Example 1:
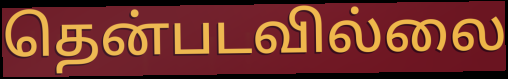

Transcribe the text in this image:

தென்படவில்லை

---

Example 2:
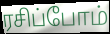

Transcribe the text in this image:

ரசிப்போம்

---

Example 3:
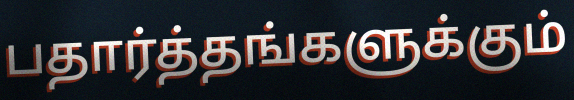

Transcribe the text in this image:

பதார்த்தங்களுக்கும்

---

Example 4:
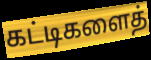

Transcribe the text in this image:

கட்டிகளைத்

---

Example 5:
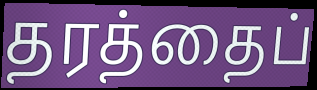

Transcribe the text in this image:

தரத்தைப்